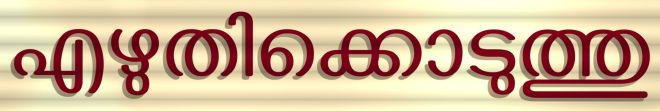
എഴുതിക്കൊടുത്തു